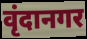
वृंदानगर